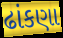
ઢાંકણા